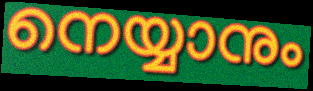
നെയ്യാനും